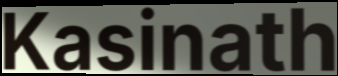
Kasinath